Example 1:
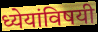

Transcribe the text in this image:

ध्येयांविषयी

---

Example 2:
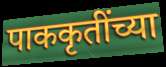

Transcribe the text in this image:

पाककृतींच्या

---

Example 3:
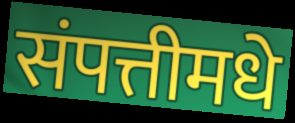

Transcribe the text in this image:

संपत्तीमधे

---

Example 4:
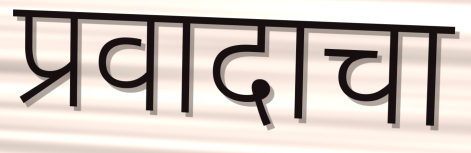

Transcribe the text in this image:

प्रवादाचा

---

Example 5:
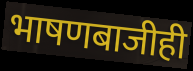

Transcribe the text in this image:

भाषणबाजीही